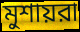
মুশায়রা